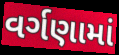
વર્ગણામાં